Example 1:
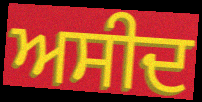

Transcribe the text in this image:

ਅਸੀਦ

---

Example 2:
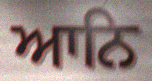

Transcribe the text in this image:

ਆਨਿ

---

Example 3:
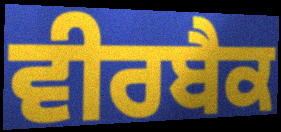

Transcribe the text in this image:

ਵੀਰਬੈਕ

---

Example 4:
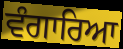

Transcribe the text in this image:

ਵੰਗਾਰਿਆ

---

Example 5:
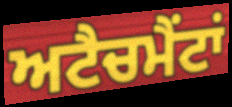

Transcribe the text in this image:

ਅਟੈਚਮੈਂਟਾਂ